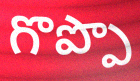
గొప్పొ